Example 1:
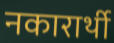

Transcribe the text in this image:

नकारार्थी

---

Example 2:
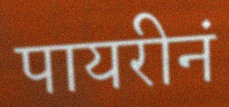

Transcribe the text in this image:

पायरीनं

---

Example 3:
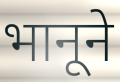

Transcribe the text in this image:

भानूने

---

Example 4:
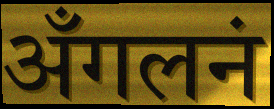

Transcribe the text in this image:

अँगलनं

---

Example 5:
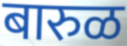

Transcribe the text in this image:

बारुळ